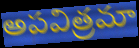
అపవిత్రమా